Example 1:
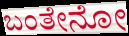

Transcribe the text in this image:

ಬಂತೇನೋ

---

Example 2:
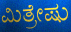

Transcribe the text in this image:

ಮಿತ್ರೇಷು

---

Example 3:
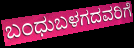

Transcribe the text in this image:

ಬಂಧುಬಳಗದವರಿಗೆ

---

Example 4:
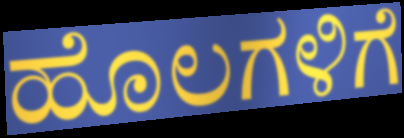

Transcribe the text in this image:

ಹೊಲಗಳಿಗೆ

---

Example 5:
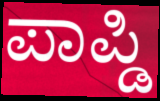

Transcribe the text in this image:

ಪಾಪ್ಡಿ